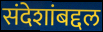
संदेशांबद्दल